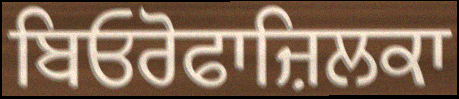
ਬਿਓਰੋਫਾਜ਼ਿਲਕਾ